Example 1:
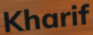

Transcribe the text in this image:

Kharif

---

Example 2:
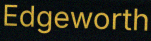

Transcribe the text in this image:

Edgeworth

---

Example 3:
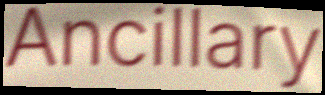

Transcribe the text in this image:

Ancillary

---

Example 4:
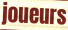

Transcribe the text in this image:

joueurs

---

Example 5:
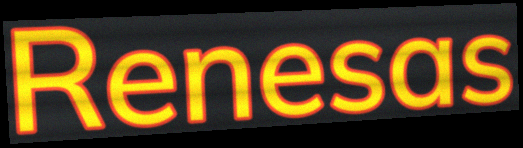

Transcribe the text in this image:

Renesas